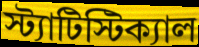
স্ট্যাটিস্টিক্যাল